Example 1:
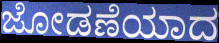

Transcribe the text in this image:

ಜೋಡಣೆಯಾದ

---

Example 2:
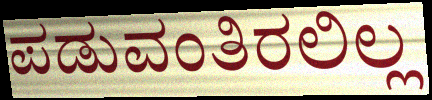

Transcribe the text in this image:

ಪಡುವಂತಿರಲಿಲ್ಲ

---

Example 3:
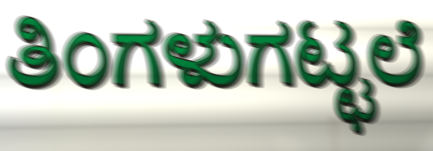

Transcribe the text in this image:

ತಿಂಗಳುಗಟ್ಟಲೆ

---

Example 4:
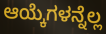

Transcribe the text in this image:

ಆಯ್ಕೆಗಳನ್ನೆಲ್ಲ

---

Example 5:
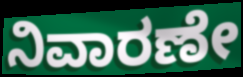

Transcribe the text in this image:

ನಿವಾರಣೇ